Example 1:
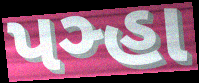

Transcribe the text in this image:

પઞ્હા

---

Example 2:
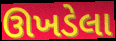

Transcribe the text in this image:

ઊખડેલા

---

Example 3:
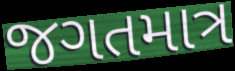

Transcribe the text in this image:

જગતમાત્ર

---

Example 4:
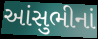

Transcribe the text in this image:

આંસુભીનાં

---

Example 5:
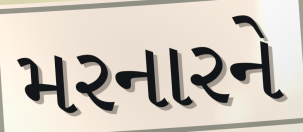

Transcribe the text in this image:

મરનારને